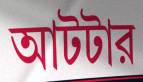
আটটার